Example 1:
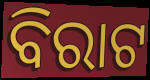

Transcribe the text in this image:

ବିରାଟ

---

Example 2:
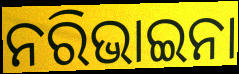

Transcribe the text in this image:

ନରିଭାଇନା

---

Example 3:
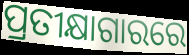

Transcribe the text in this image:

ପ୍ରତୀକ୍ଷାଗାରରେ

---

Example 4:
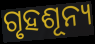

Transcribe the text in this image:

ଗୃହଶୂନ୍ୟ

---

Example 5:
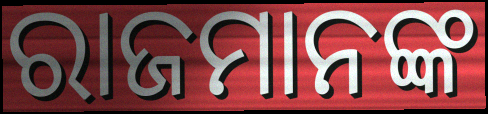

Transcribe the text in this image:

ରାଜମାନଙ୍କ